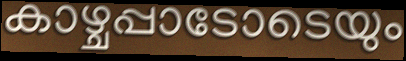
കാഴ്ചപ്പാടോടെയും